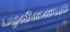
பழவினையும்